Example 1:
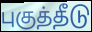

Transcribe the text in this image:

புகுத்தீடு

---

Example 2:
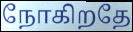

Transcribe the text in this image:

நோகிறதே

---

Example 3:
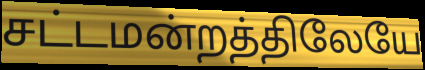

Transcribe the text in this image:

சட்டமன்றத்திலேயே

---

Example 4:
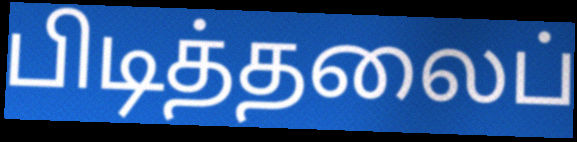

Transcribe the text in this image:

பிடித்தலைப்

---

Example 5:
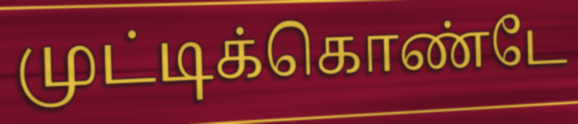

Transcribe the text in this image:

முட்டிக்கொண்டே